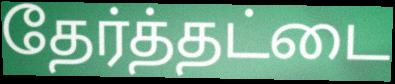
தேர்த்தட்டை